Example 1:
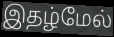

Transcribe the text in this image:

இதழ்மேல்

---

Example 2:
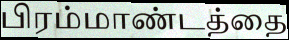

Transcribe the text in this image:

பிரம்மாண்டத்தை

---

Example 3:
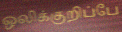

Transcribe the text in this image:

ஒலிக்குறிப்பே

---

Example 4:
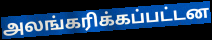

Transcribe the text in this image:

அலங்கரிக்கப்பட்டன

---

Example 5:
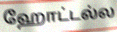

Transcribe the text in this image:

ஹோட்டல்ல